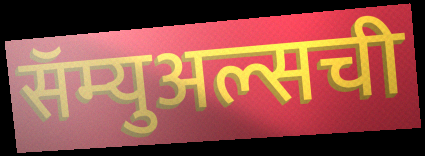
सॅम्युअल्सची